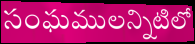
సంఘములన్నిటిలో